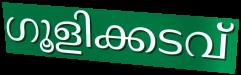
ഗൂളിക്കടവ്